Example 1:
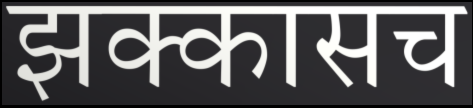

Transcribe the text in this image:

झक्कासच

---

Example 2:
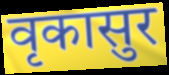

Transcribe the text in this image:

वृकासुर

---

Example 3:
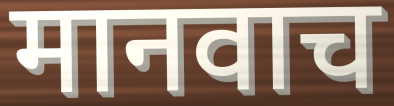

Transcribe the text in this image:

मानवाच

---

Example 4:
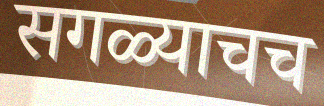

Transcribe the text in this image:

सगळ्याचच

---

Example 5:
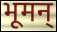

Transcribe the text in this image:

भूमन्